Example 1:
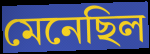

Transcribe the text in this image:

মেনেছিল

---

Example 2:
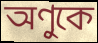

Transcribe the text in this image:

অণুকে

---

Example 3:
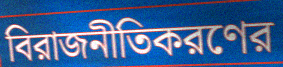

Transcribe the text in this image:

বিরাজনীতিকরণের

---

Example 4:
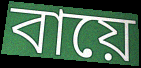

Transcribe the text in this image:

বায়ে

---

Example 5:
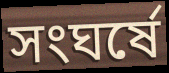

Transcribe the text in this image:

সংঘর্ষে